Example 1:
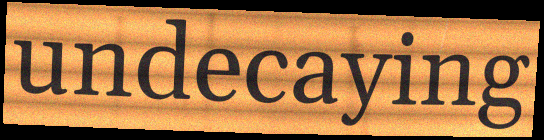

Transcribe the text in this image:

undecaying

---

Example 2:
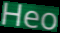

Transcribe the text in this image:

Heo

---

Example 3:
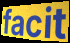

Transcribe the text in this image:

facit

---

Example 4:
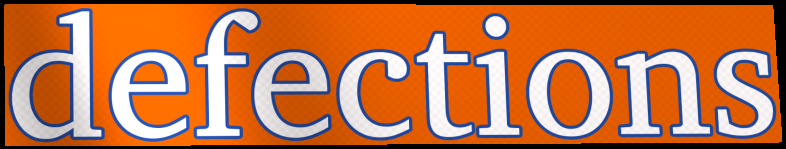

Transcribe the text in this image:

defections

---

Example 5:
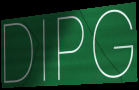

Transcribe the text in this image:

DIPG